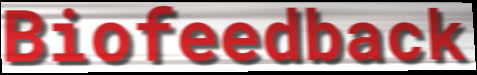
Biofeedback